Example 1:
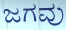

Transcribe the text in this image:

ಜಗವು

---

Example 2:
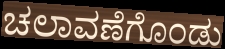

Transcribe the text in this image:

ಚಲಾವಣೆಗೊಂಡು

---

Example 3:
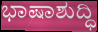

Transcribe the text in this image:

ಭಾಷಾಶುದ್ಧಿ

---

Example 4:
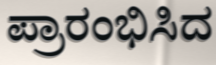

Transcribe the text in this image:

ಪ್ರಾರಂಭಿಸಿದ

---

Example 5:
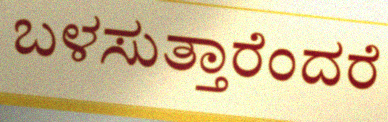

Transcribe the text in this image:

ಬಳಸುತ್ತಾರೆಂದರೆ